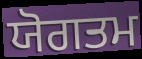
ਯੋਗਤਮ